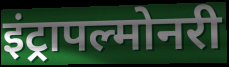
इंट्रापल्मोनरी